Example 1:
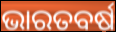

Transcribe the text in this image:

ଭାରତବର୍ଷ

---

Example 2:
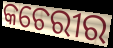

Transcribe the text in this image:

କଚେରୀର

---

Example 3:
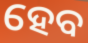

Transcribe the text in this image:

ହେବ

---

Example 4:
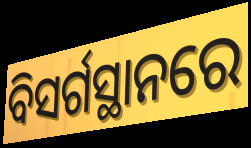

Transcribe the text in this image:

ବିସର୍ଗସ୍ଥାନରେ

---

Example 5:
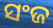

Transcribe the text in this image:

ସଂଜ